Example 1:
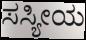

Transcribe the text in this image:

ಸಸ್ಯೀಯ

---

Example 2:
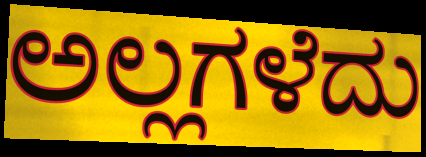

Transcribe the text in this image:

ಅಲ್ಲಗಳೆದು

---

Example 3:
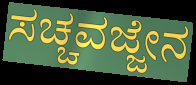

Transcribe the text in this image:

ಸಚ್ಚವಜ್ಜೇನ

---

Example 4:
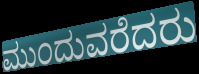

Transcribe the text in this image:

ಮುಂದುವರೆದರು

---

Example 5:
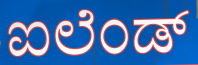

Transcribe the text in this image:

ಐಲೆಂಡ್